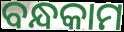
ବନ୍ଧକାମ